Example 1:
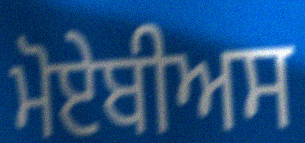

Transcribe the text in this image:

ਮੋਏਬੀਅਸ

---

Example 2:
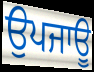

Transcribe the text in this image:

ਉਪਜਾਊ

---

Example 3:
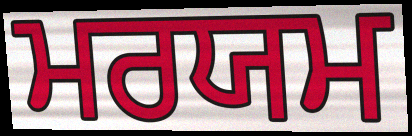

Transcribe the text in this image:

ਮਰਯਮ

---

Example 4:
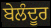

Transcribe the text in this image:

ਬੇਲੰਦੂਰ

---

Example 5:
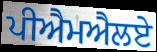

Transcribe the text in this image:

ਪੀਐਮਐਲਏ